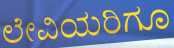
ಲೇವಿಯರಿಗೂ